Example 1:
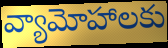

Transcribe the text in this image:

వ్యామోహాలకు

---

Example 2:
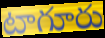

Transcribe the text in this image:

టాగూరు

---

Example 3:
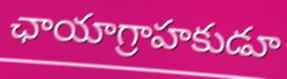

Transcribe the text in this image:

ఛాయాగ్రాహకుడూ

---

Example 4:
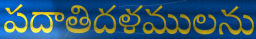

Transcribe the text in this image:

పదాతిదళములను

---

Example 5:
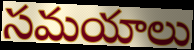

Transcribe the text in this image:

సమయాలు